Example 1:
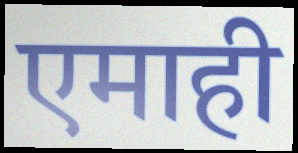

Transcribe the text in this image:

एमाही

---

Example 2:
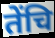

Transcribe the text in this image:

तेंचि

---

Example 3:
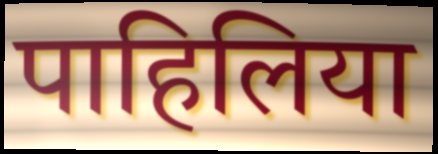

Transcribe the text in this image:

पाहिलिया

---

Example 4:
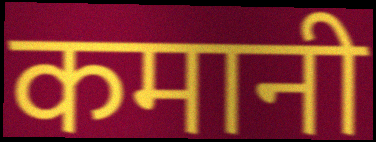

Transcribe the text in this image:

कमानी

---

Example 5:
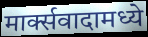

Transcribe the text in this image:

मार्क्सवादामध्ये